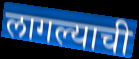
लागल्याची